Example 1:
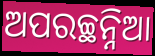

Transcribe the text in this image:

ଅପରଚ୍ଛନ୍ନିଆ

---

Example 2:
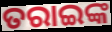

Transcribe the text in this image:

ତରାଇଙ୍କ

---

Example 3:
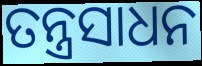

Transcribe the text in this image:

ତନ୍ତ୍ରସାଧନ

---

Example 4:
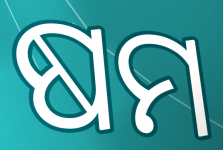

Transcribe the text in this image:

ଷମ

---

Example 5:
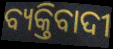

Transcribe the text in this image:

ବ୍ୟକ୍ତିବାଦୀ